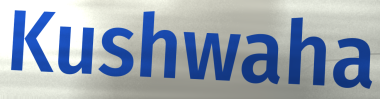
Kushwaha